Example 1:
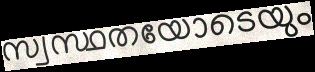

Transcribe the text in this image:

സ്വസ്ഥതയോടെയും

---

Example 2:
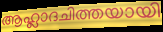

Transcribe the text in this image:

ആഹ്ലാദചിത്തയായി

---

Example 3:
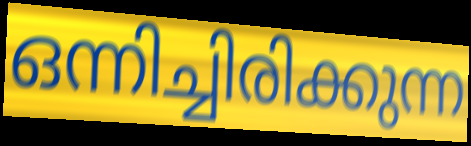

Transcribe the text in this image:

ഒന്നിച്ചിരിക്കുന്ന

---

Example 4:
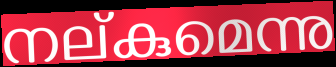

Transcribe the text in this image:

നല്‌കുമെന്നു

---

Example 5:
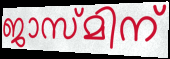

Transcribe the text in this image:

ജാസ്മിന്